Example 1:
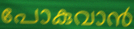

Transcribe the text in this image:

പോകുവാൻ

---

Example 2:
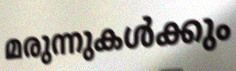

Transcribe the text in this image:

മരുന്നുകൾക്കും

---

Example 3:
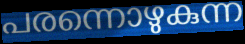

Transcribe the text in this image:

പരന്നൊഴുകുന്ന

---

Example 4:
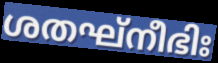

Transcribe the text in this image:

ശതഘ്നീഭിഃ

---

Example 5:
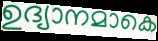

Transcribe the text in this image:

ഉദ്യാനമാകെ